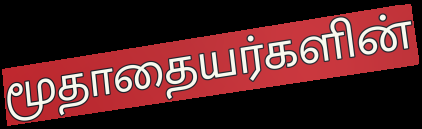
மூதாதையர்களின்